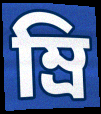
ম্রি